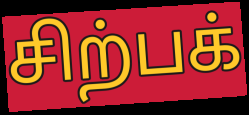
சிற்பக்